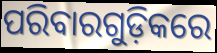
ପରିବାରଗୁଡ଼ିକରେ